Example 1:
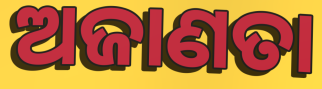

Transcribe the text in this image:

ଅଜାଣତା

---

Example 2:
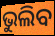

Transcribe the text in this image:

ଭୁଲିବ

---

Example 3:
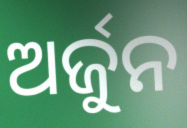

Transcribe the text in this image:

ଅର୍ଜୁନ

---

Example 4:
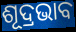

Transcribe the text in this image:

ଶୂଦ୍ରଭାବ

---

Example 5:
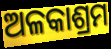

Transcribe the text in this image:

ଅଳକାଶ୍ରମ